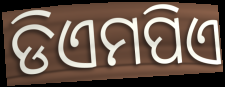
ଡିଏମପିଏ